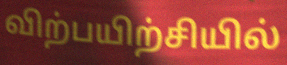
விற்பயிற்சியில்